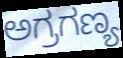
ಅಗ್ರಗಣ್ಯ